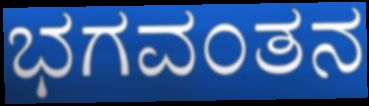
ಭಗವಂತನ